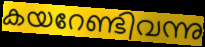
കയറേണ്ടിവന്നു